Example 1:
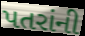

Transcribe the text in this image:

પતરાંની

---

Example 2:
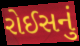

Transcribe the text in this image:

રોઈસનું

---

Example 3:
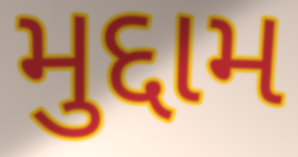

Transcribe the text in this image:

મુદ્દામ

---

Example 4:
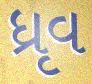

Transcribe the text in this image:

ધ્રૃવ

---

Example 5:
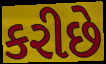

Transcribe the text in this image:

કરીછે